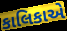
કાલિકાએ